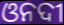
ଓନଦୀ